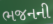
ભજનની